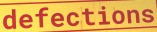
defections